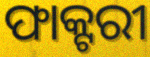
ଫାକ୍ଟରୀ